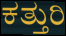
ಕತ್ತುರಿ